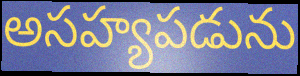
అసహ్యపడును